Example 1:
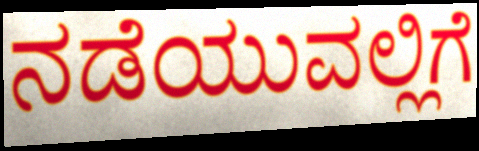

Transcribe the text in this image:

ನಡೆಯುವಲ್ಲಿಗೆ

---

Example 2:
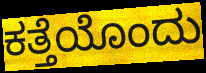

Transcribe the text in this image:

ಕತ್ತೆಯೊಂದು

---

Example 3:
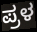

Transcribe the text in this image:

ಪ್ರಳ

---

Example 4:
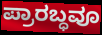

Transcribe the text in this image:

ಪ್ರಾರಬ್ಧವೂ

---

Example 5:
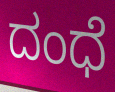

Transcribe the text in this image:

ದಂಧೆ